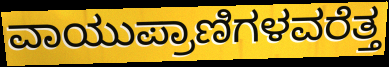
ವಾಯುಪ್ರಾಣಿಗಳವರೆತ್ತ